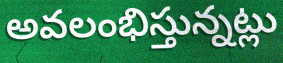
అవలంభిస్తున్నట్లు